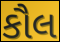
કૌલ